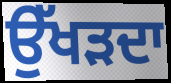
ਉੱਖੜਦਾ